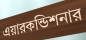
এয়ারকন্ডিশনার